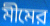
মীমের